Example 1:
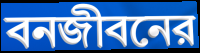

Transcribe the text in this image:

বনজীবনের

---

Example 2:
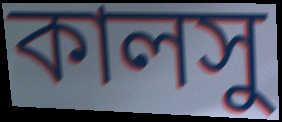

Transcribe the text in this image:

কালসু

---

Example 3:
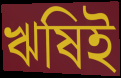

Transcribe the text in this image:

ঋষিই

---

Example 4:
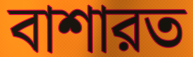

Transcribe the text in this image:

বাশারত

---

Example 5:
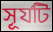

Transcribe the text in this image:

সূর্যটি